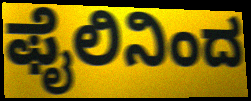
ಫೈಲಿನಿಂದ